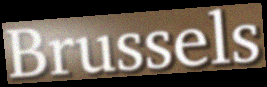
Brussels